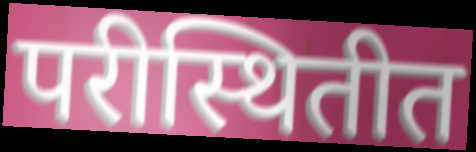
परीस्थितीत